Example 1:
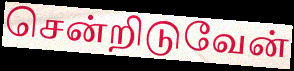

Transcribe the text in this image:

சென்றிடுவேன்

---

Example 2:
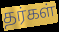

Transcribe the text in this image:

தர்கள்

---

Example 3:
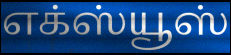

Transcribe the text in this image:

எக்ஸ்யூஸ்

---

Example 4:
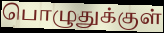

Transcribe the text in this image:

பொழுதுக்குள்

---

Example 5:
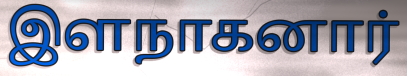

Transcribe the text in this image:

இளநாகனார்